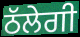
ਠੱਲੇਗੀ